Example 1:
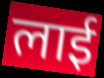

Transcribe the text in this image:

लाई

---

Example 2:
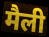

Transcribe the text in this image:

मैली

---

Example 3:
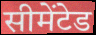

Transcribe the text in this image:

सीमेंटेड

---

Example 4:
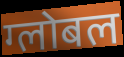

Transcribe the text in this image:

ग्लोबल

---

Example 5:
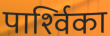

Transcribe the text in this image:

पार्श्विका